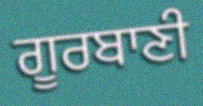
ਗੂਰਬਾਣੀ